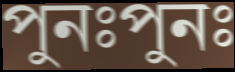
পুনঃপুনঃ